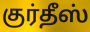
குர்தீஸ்